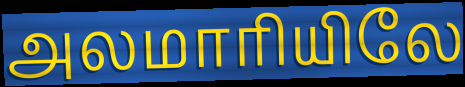
அலமாரியிலே